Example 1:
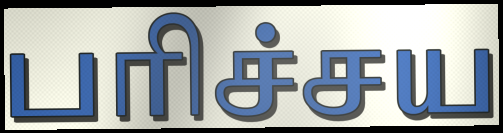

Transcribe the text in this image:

பரிச்சய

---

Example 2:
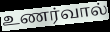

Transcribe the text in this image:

உணர்வால்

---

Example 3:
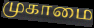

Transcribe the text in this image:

முகாமை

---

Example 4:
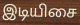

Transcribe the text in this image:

இடியிசை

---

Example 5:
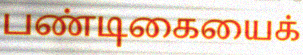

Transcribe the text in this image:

பண்டிகையைக்